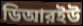
ডিআরইউ